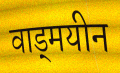
वाड्‌मयीन